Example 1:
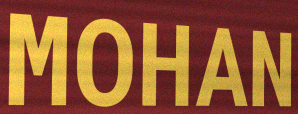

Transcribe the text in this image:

MOHAN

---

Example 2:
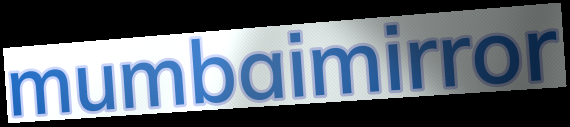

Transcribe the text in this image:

mumbaimirror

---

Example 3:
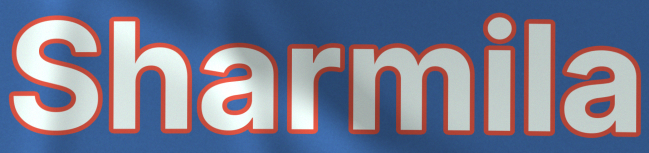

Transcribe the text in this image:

Sharmila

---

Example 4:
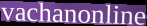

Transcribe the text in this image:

vachanonline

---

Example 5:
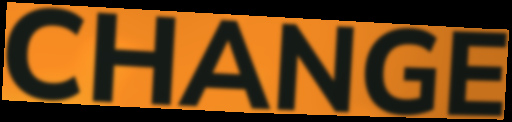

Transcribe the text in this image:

CHANGE